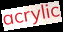
acrylic